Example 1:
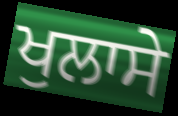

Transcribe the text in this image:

ਖੁਲਾਸੇ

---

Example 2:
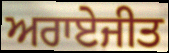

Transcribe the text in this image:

ਅਰਾਏਜੀਤ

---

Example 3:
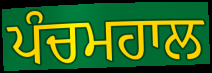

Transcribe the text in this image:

ਪੰਚਮਹਾਲ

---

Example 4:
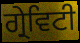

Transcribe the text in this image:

ਗ੍ਰੇਵਿਟੀ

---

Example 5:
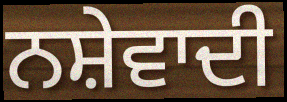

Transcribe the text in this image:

ਨਸ਼ੇਵਾਦੀ